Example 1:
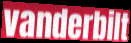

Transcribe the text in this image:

vanderbilt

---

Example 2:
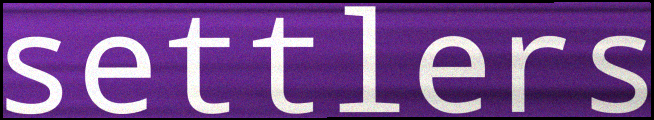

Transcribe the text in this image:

settlers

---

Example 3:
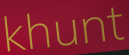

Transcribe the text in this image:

khunt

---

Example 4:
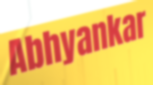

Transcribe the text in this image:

Abhyankar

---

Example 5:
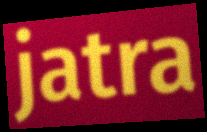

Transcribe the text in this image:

jatra